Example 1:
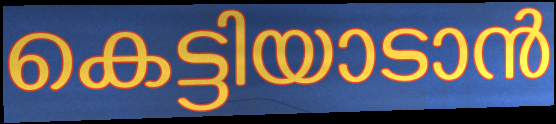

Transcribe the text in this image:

കെട്ടിയാടാൻ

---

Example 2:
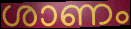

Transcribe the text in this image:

ശാണം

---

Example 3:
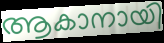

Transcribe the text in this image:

ആകാനായി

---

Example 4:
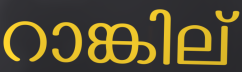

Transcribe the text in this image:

റാങ്കില്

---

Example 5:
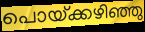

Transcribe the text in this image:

പൊയ്‌ക്കഴിഞ്ഞു